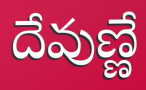
దేవుణ్ణే